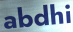
abdhi